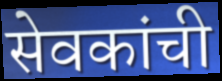
सेवकांची